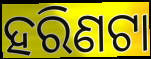
ହରିଣଟା